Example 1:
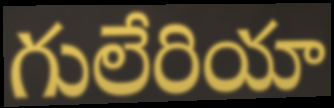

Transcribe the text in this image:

గులేరియా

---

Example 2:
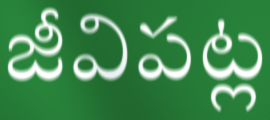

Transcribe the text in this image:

జీవిపట్ల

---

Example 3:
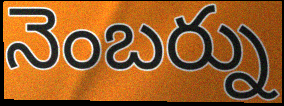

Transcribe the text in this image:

నెంబర్ను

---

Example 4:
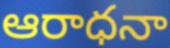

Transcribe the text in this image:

ఆరాధనా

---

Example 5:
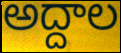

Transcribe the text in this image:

అద్దాల